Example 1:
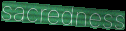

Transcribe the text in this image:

sacredness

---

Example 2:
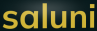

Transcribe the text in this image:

saluni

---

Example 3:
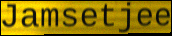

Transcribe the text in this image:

Jamsetjee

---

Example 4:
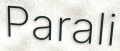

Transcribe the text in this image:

Parali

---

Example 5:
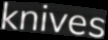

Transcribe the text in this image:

knives